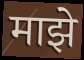
माझे